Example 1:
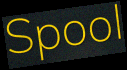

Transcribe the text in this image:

Spool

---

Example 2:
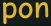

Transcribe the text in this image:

pon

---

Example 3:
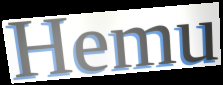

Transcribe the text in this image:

Hemu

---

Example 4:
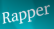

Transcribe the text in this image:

Rapper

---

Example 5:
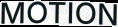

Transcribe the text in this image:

MOTION